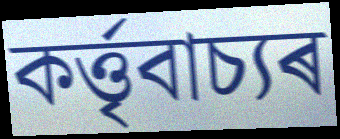
কৰ্ত্তৃবাচ্যৰ